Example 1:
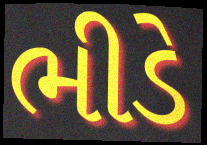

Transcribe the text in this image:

ભીડે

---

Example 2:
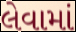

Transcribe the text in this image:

લેવામાં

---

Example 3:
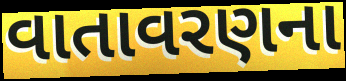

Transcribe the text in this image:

વાતાવરણના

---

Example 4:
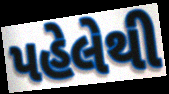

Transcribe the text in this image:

પહેલેથી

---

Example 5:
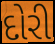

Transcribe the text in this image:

દોરી